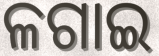
ଳଗାଇ